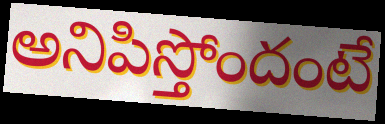
అనిపిస్తోందంటే